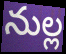
నుల్ల